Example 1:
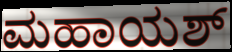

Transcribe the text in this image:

ಮಹಾಯಶ್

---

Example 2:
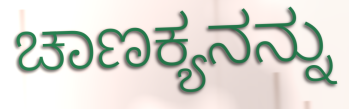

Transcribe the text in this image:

ಚಾಣಕ್ಯನನ್ನು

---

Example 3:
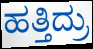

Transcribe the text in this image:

ಹತ್ತಿದ್ರು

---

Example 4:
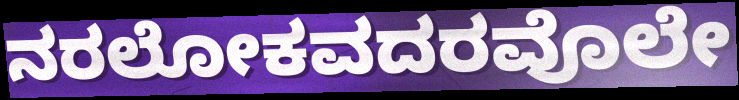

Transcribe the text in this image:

ನರಲೋಕವದರವೊಲೇ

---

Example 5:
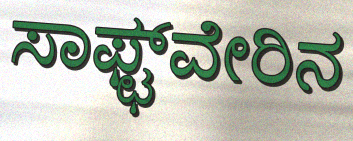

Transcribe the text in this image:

ಸಾಫ್ಟ್‌ವೇರಿನ